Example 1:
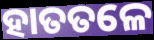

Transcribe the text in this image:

ହାତତଳେ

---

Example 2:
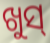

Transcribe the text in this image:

ଖୁସ୍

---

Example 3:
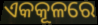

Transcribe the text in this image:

ଏକକୂଳରେ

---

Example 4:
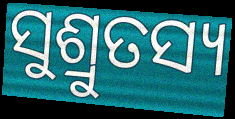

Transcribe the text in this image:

ସୁଶ୍ରୁତସ୍ୟ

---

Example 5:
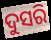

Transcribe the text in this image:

ଦୁସରି